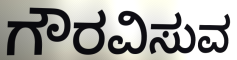
ಗೌರವಿಸುವ